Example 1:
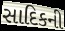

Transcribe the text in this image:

સાદિકની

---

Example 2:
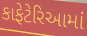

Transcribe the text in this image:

કાફેટેરિઆમાં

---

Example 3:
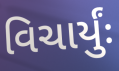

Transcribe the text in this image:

વિચાર્યુંઃ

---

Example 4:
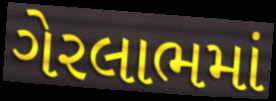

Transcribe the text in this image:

ગેરલાભમાં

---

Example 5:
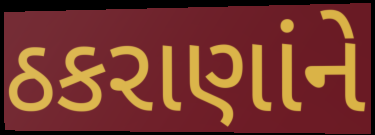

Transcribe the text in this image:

ઠકરાણાંને